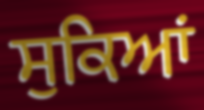
ਸੁਕਿਆਂ